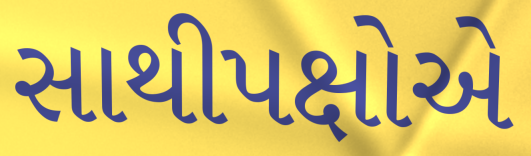
સાથીપક્ષોએ